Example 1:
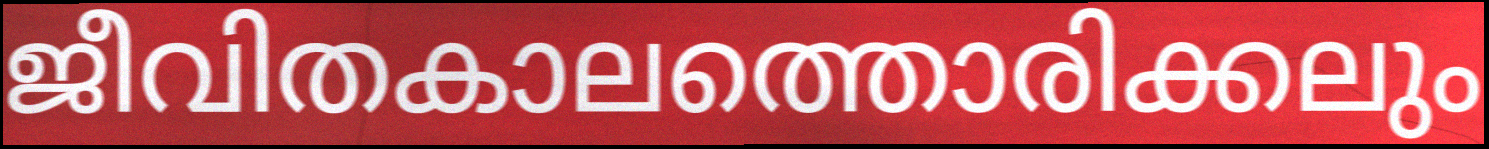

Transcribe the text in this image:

ജീവിതകാലത്തൊരിക്കലും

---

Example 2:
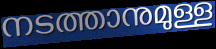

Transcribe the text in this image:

നടത്താനുമുള്ള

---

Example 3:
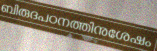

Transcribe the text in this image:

ബിരുദപഠനത്തിനുശേഷം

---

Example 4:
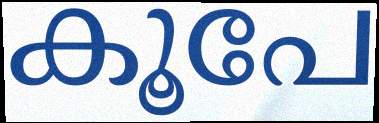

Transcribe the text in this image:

കൂപേ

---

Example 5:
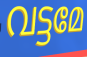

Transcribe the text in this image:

വട്ടമേ